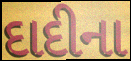
દાદીના